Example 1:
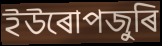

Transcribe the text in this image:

ইউৰোপজুৰি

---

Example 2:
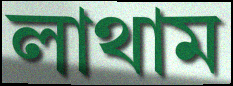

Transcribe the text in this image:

লাথাম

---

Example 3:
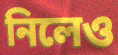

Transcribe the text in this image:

নিলেও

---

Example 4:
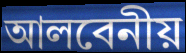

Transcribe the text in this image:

আলবেনীয়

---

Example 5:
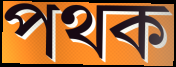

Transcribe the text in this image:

পথক